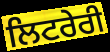
ਲਿਟਰੇਰੀ